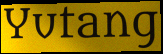
Yutang